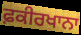
ਫ਼ਕੀਰਖਾਨਾ